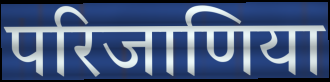
परिजाणिया